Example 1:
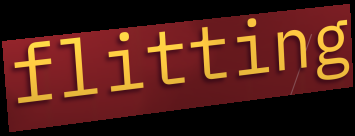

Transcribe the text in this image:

flitting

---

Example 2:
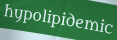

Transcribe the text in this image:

hypolipidemic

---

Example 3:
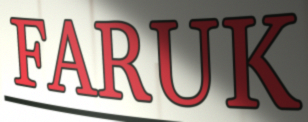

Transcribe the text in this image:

FARUK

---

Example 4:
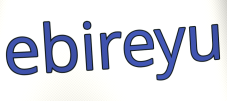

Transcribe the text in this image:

ebireyu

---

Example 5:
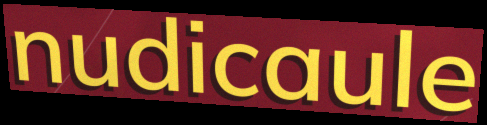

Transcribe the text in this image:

nudicaule